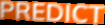
PREDICT